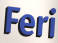
Feri